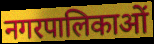
नगरपालिकाओं